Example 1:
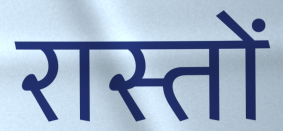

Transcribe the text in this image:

रास्तों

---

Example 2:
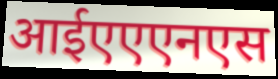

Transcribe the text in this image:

आईएएएनएस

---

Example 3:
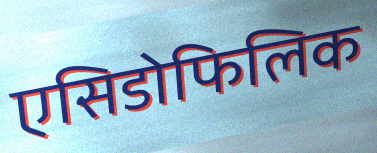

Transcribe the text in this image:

एसिडोफिलिक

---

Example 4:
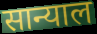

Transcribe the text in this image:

सान्याल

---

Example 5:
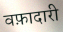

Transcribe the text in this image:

वफ़ादारी